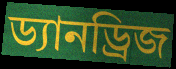
ড্যানড্রিজ